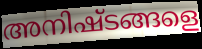
അനിഷ്ടങ്ങളെ